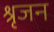
श्रृजन